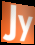
Jy